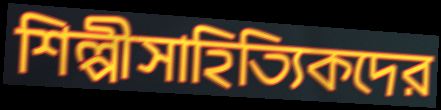
শিল্পীসাহিত্যিকদের